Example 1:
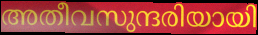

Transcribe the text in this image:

അതീവസുന്ദരിയായി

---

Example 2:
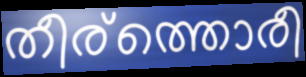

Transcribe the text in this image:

തീര്ത്തൊരീ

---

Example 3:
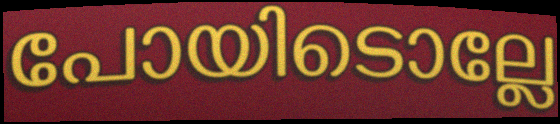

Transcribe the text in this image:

പോയിടൊല്ലേ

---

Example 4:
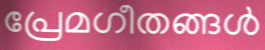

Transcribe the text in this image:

പ്രേമഗീതങ്ങൾ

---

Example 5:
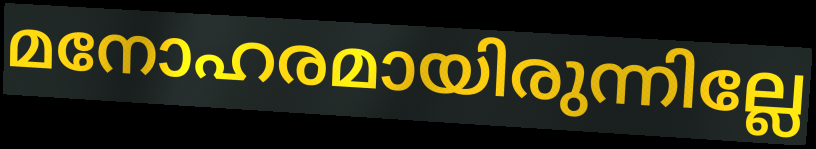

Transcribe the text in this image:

മനോഹരമായിരുന്നില്ലേ